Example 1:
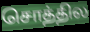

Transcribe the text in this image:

சொத்தில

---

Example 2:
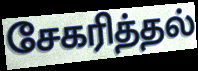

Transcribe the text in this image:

சேகரித்தல்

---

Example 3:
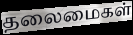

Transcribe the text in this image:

தலைமைகள்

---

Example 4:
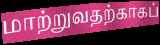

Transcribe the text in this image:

மாற்றுவதற்காகப்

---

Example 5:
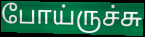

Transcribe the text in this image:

போய்ருச்சு